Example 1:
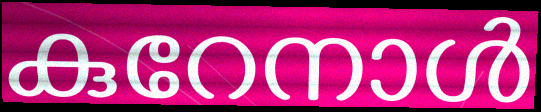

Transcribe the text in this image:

കുറേനാൾ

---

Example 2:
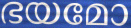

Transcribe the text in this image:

ഭയമോ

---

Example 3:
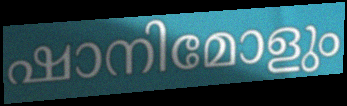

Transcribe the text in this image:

ഷാനിമോളും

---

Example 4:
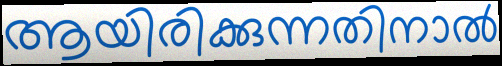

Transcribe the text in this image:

ആയിരിക്കുന്നതിനാൽ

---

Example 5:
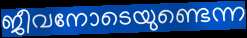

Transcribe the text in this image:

ജീവനോടെയുണ്ടെന്ന